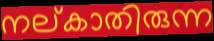
നല്കാതിരുന്ന